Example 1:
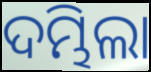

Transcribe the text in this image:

ଦମ୍ଭିଲା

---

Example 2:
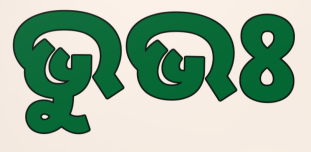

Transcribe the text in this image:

ଭୁଭଃ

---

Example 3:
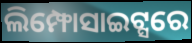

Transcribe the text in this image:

ଲିମ୍ଫୋସାଇଟ୍ସରେ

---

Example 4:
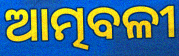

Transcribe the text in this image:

ଆତ୍ମବଳୀ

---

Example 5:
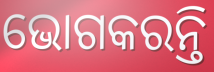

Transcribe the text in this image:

ଭୋଗକରନ୍ତି